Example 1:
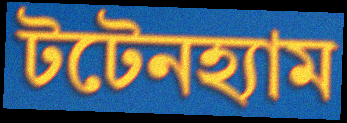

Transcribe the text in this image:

টটেনহ্যাম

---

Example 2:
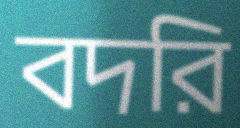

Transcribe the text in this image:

বদরি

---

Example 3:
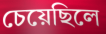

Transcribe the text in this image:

চেয়েছিলে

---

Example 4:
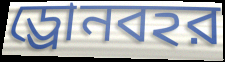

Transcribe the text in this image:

ড্রোনবহর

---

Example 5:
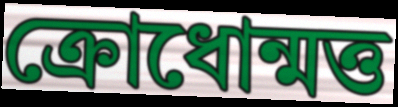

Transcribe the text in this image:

ক্রোধোন্মত্ত